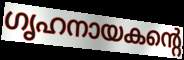
ഗൃഹനായകന്റെ